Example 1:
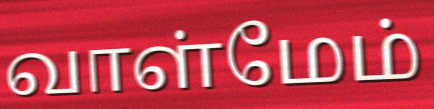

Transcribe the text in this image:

வாள்மேம்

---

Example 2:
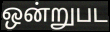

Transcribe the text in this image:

ஒன்றுபட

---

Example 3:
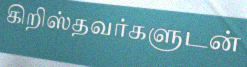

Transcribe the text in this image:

கிறிஸ்தவர்களுடன்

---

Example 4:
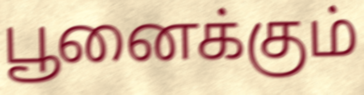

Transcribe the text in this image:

பூனைக்கும்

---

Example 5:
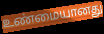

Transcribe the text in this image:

உண்மையானது